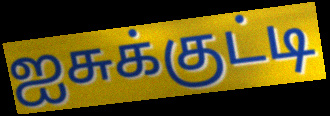
ஐசுக்குட்டி